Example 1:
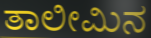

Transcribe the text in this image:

ತಾಲೀಮಿನ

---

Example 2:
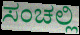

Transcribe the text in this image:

ಸಂಚಲ್ಲಿ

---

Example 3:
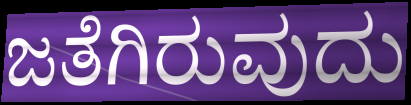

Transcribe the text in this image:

ಜತೆಗಿರುವುದು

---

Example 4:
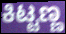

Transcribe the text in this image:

ಕಿಟ್ಟಣ್ಣ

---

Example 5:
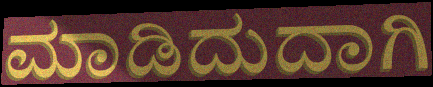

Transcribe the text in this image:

ಮಾಡಿದುದಾಗಿ